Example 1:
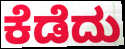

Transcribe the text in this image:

ಕೆಡೆದು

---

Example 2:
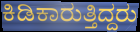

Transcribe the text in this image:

ಕಿಡಿಕಾರುತ್ತಿದ್ದರು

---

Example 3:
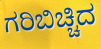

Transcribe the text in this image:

ಗರಿಬಿಚ್ಚಿದ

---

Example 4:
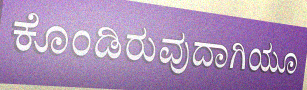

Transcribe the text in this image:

ಕೊಂಡಿರುವುದಾಗಿಯೂ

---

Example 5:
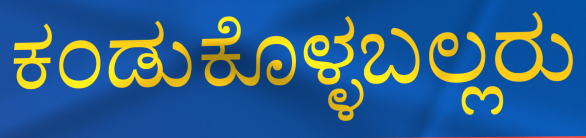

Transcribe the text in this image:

ಕಂಡುಕೊಳ್ಳಬಲ್ಲರು